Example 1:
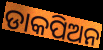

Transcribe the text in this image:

ଡାକପିଅନ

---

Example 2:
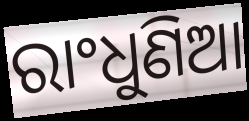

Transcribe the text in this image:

ରାଂଧୁଣିଆ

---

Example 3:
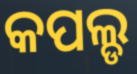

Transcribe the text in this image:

କପଲ୍ଡ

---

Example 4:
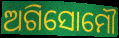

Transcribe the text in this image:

ଅଗିସୋମୌ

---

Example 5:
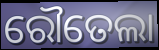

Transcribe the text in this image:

ରୌତେଲା